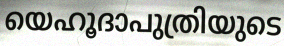
യെഹൂദാപുത്രിയുടെ